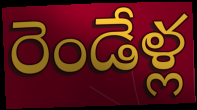
రెండేళ్ల